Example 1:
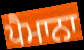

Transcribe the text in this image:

ਪੈਮਾਨਾ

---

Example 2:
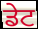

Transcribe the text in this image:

ਡੇਟ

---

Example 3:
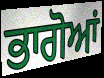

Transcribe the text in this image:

ਭਾਗੋਆਂ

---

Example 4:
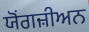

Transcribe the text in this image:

ਯੋਂਗਜ਼ੀਅਨ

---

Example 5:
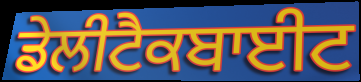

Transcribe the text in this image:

ਡੇਲੀਟੈਕਬਾਈਟ